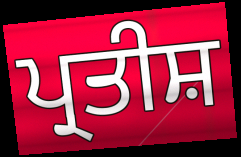
ਪ੍ਰਤੀਸ਼